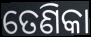
ତେଣିକା